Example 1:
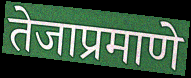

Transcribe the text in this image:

तेजाप्रमाणे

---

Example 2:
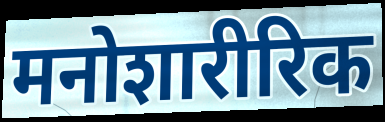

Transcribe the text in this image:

मनोशारीरिक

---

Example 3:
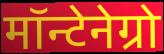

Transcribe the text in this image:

मॉन्टेनेग्रो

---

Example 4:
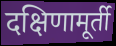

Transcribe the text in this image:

दक्षिणामूर्ती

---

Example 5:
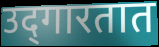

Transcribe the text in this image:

उद्‌गारतात